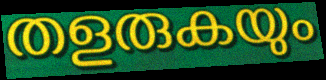
തളരുകയും